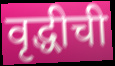
वृद्धीची